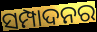
ସମ୍ପାଦନର